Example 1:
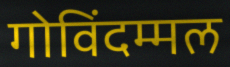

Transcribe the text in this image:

गोविंदम्मल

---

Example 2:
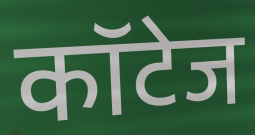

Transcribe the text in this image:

कॉटेज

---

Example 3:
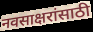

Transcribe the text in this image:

नवसाक्षरांसाठी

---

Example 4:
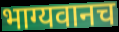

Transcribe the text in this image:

भाग्यवानच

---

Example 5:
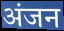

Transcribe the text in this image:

अंजन